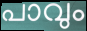
പാവും